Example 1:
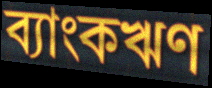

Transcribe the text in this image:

ব্যাংকঋণ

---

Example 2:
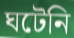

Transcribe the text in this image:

ঘটেনি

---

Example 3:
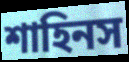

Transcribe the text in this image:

শাহিনস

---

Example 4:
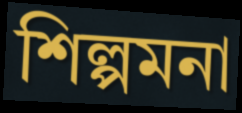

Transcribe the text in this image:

শিল্পমনা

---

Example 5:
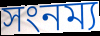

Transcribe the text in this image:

সংনম্য